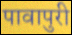
पावापुरी